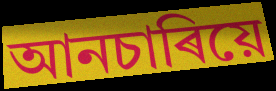
আনচাৰিয়ে